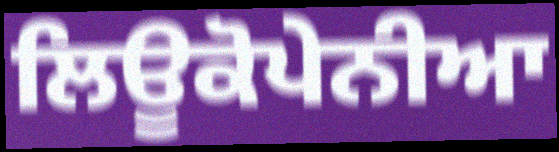
ਲਿਊਕੋਪੇਨੀਆ